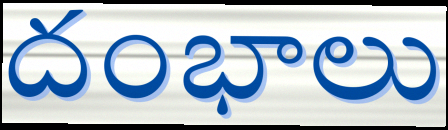
దంభాలు